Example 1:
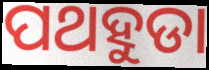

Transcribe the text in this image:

ପଥହୁଡା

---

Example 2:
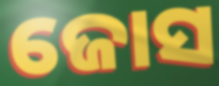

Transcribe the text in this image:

ଜୋସ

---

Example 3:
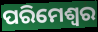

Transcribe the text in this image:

ପରିମେଶ୍ୱର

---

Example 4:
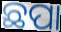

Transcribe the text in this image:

ଛପା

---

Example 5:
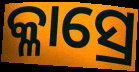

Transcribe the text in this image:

କ୍ଳାସ୍ରେ